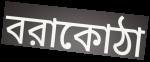
বরাকোঠা